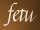
fetu